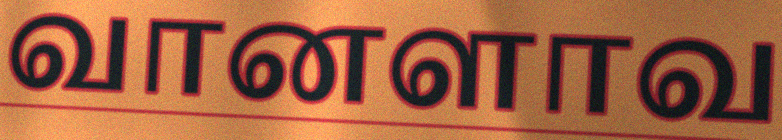
வானளாவ